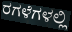
ರಗಳೆಗಳಲ್ಲಿ